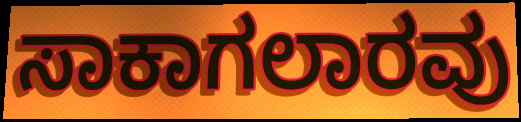
ಸಾಕಾಗಲಾರವು